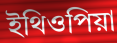
ইথিওপিয়া